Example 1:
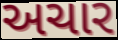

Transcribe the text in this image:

અચાર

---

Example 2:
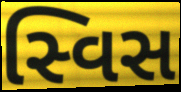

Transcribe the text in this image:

સ્વિસ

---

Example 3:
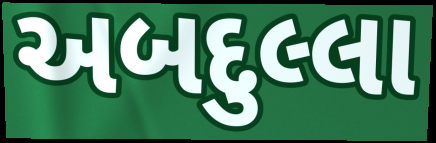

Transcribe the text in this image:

અબદુલ્લા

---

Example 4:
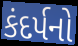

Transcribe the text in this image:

કંદર્પનો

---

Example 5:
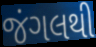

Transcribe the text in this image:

જંગલથી